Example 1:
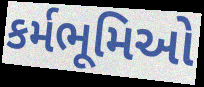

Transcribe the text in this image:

કર્મભૂમિઓ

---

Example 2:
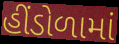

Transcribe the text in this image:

હીંડોળામાં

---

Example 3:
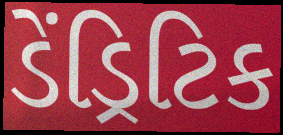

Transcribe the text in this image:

ડેંડ્રિટિક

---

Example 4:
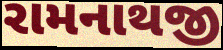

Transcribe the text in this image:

રામનાથજી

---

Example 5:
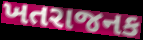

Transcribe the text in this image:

ખતરાજનક